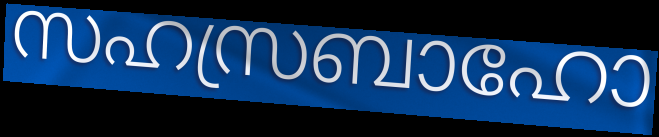
സഹസ്രബാഹോ